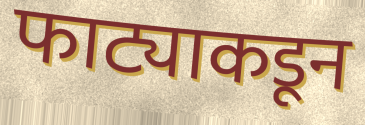
फाट्याकडून